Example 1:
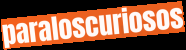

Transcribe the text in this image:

paraloscuriosos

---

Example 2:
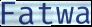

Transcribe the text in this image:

Fatwa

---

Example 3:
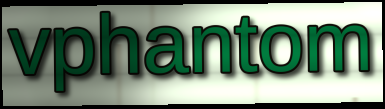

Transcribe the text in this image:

vphantom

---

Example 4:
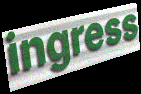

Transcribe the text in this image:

ingress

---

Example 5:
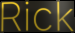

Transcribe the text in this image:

Rick